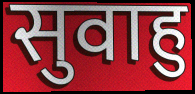
सुवाहु